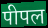
पीपल